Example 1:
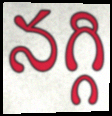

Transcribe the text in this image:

నగ్గి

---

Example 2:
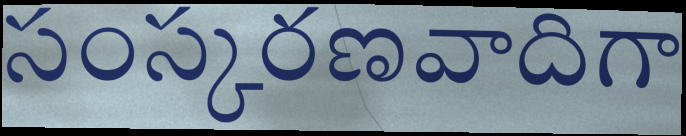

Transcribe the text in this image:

సంస్కరణవాదిగా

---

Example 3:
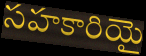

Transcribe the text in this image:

సహకారియై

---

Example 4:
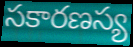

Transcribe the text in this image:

సకారణస్య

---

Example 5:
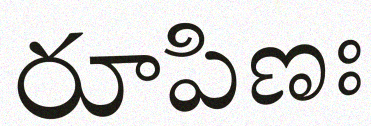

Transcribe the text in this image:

రూపిణః